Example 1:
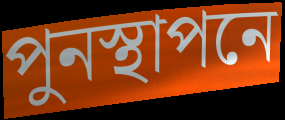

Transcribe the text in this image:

পুনস্থাপনে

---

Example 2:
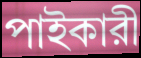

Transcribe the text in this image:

পাইকারী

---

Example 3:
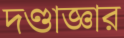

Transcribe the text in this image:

দণ্ডাজ্ঞার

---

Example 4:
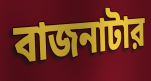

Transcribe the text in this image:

বাজনাটার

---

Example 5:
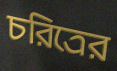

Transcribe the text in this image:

চরিত্রের